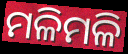
ମଳିମଳି